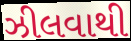
ઝીલવાથી